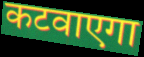
कटवाएगा